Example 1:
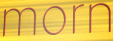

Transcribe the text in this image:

morn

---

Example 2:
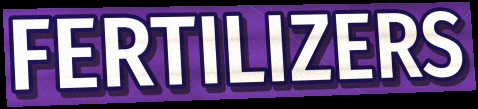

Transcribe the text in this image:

FERTILIZERS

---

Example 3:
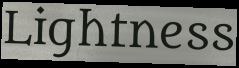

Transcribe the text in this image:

Lightness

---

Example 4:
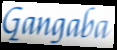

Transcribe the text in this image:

Gangaba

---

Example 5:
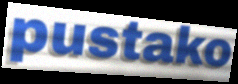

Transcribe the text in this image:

pustako